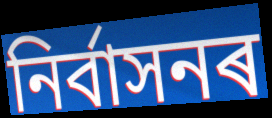
নিৰ্বাসনৰ